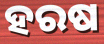
ହରଷ